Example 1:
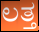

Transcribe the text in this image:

ಲತ್ತ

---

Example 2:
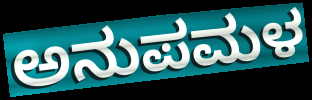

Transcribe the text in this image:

ಅನುಪಮಳ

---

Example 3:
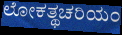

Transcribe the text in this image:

ಲೋಕತ್ಥಚರಿಯಂ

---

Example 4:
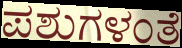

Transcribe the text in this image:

ಪಶುಗಳಂತೆ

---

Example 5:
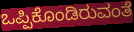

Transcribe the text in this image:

ಒಪ್ಪಿಕೊಂಡಿರುವಂತೆ